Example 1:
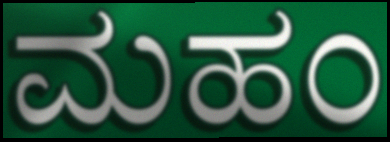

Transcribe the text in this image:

ಮಹಂ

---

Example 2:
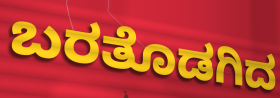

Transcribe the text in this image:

ಬರತೊಡಗಿದ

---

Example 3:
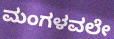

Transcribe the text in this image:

ಮಂಗಳವಲೇ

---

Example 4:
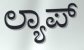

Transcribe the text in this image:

ಲ್ಯಾಪ್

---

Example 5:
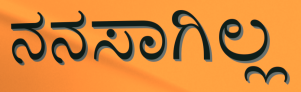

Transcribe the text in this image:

ನನಸಾಗಿಲ್ಲ